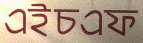
এইচএফ